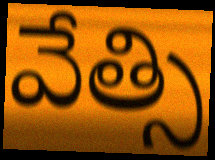
వేత్సి